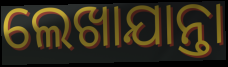
ଲେଖାଯାନ୍ତା